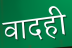
वादही